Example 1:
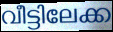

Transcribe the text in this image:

വീട്ടിലേക്ക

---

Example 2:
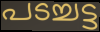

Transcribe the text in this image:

പടച്ചട്ട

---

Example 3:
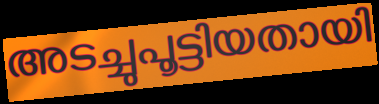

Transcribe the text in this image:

അടച്ചുപൂട്ടിയതായി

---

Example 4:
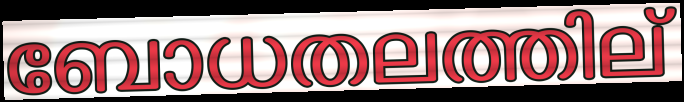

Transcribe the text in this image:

ബോധതലത്തില്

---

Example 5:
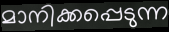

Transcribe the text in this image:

മാനിക്കപ്പെടുന്ന